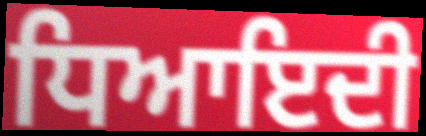
ਧਿਆਇਦੀ